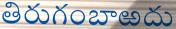
తిరుగంబాఱదు